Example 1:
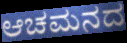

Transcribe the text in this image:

ಆಚಮನದ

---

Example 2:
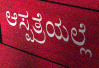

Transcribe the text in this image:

ಆಸ್ಪತ್ರೆಯಲ್ಲೆ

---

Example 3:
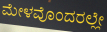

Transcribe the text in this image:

ಮೇಳವೊಂದರಲ್ಲೇ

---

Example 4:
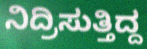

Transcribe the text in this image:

ನಿದ್ರಿಸುತ್ತಿದ್ದ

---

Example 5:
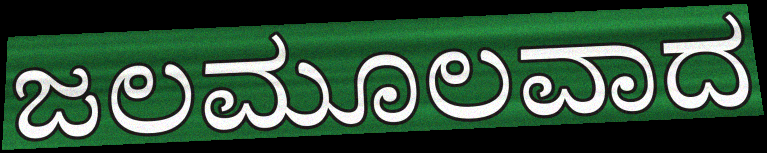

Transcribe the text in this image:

ಜಲಮೂಲವಾದ